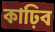
কাঢ়িব